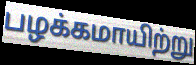
பழக்கமாயிற்று